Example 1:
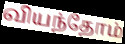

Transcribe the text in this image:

வியந்தோம்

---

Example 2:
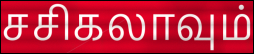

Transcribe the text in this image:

சசிகலாவும்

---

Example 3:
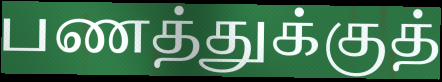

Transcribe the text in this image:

பணத்துக்குத்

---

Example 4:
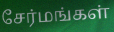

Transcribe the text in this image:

சேர்மங்கள்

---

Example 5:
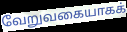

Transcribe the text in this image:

வேறுவகையாகக்